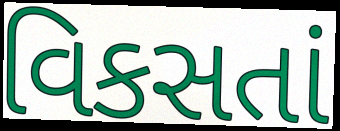
વિકસતાં